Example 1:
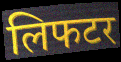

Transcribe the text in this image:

लिफटर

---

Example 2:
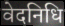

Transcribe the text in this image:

वेदनिधि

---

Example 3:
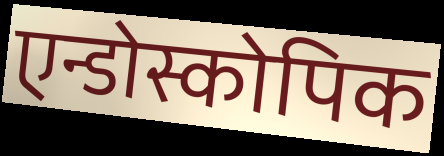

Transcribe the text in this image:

एन्डोस्कोपिक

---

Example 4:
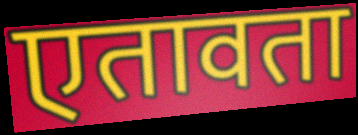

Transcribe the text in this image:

एतावता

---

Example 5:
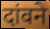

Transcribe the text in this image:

दांवने